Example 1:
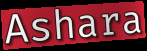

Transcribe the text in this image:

Ashara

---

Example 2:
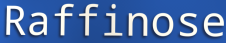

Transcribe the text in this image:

Raffinose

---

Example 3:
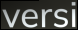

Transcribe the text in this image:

versi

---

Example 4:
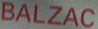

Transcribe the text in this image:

BALZAC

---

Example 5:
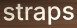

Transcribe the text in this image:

straps